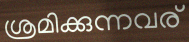
ശ്രമിക്കുന്നവര്